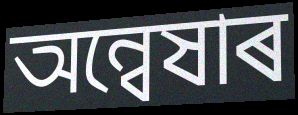
অন্বেষাৰ